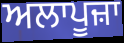
ਅਲਾਪੂਜ਼ਾ